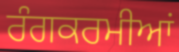
ਰੰਗਕਰਮੀਆਂ